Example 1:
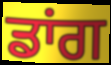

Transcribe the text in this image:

ਡਾਂਗ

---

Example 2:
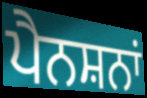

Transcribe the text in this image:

ਪੈਨਸ਼ਨਾਂ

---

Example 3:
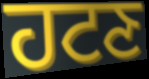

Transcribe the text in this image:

ਹਟਣ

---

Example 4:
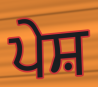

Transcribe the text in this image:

ਪੇਸ਼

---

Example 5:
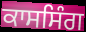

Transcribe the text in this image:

ਕਾਸਸਿੰਗ